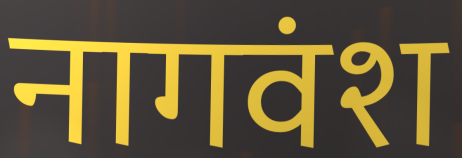
नागवंश